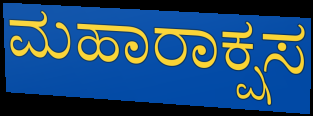
ಮಹಾರಾಕ್ಷಸ